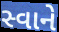
સ્વાને